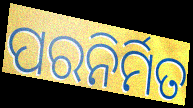
ପରନିର୍ମିତ